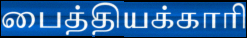
பைத்தியக்காரி